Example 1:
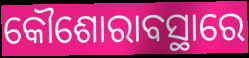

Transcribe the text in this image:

କୌଶୋରାବସ୍ଥାରେ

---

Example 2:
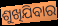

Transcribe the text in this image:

ଶୁଖିଯିବାର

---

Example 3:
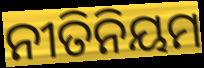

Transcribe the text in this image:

ନୀତିନିୟମ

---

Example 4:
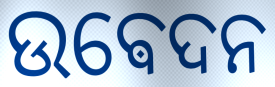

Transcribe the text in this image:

ଉଵେଦନ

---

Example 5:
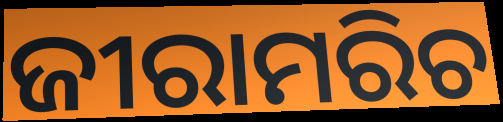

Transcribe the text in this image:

ଜୀରାମରିଚ